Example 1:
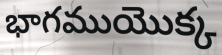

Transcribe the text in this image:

భాగముయొక్క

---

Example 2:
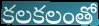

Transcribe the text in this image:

కలకలంతో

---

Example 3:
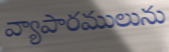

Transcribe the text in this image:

వ్యాపారములును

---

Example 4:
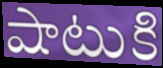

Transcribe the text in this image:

షాటుకి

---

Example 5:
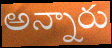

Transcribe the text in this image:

అన్నారు